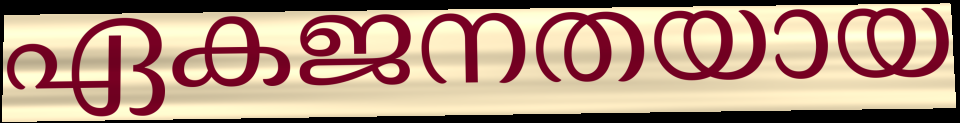
ഏകജനതയായ